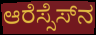
ಆರೆಸ್ಸೆಸ್‌ನ